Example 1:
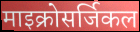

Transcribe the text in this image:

माइक्रोसर्जिकल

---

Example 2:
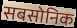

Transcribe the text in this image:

सबसोनिक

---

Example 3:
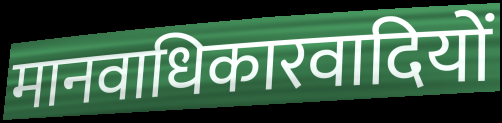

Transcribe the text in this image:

मानवाधिकारवादियों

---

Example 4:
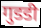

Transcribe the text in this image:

गुडडी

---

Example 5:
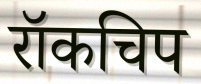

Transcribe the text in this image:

रॉकचिप